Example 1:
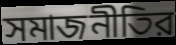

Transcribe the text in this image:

সমাজনীতির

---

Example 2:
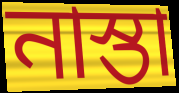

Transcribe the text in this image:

নাস্তা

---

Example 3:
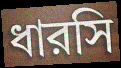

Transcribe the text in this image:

ধারসি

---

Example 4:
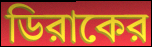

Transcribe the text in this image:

ডিরাকের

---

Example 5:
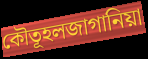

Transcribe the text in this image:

কৌতূহলজাগানিয়া